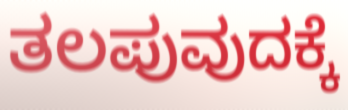
ತಲಪುವುದಕ್ಕೆ